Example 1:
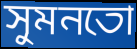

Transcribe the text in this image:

সুমনতো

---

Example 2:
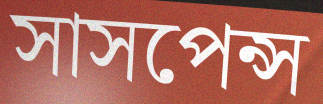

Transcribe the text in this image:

সাসপেন্স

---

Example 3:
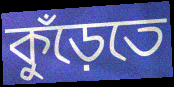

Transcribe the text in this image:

কুঁড়েতে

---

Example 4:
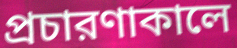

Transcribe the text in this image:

প্রচারণাকালে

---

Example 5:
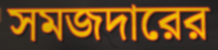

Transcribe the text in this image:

সমজদারের